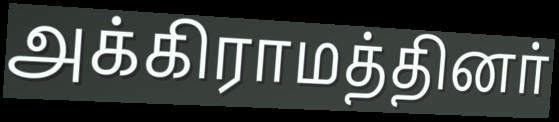
அக்கிராமத்தினர்